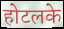
होटलके